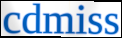
cdmiss